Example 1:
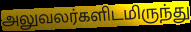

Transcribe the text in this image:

அலுவலர்களிடமிருந்து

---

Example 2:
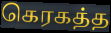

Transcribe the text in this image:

கெரகத்த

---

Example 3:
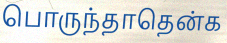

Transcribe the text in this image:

பொருந்தாதென்க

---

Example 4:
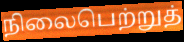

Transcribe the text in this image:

நிலைபெற்றுத்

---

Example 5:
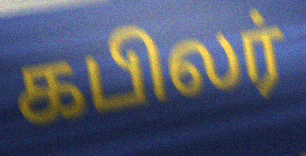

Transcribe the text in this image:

கபிலர்